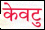
केवटु